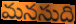
మనసుది